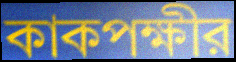
কাকপক্ষীর